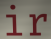
ir